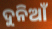
ଦୁନିଆଁ